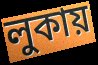
লুকায়